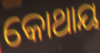
କୋଥାୟ